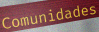
Comunidades